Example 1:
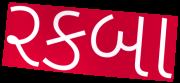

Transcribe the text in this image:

રકબા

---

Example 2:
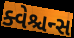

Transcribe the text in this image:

ક્વેશ્ચન્સ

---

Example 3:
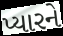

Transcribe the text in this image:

પ્યારને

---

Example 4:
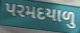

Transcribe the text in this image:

પરમદયાળુ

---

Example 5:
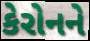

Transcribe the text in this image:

કેરોનને